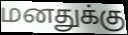
மனதுக்கு